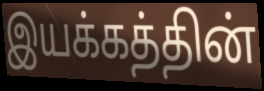
இயக்கத்தின்